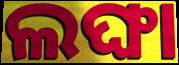
ଲଙ୍ଘା